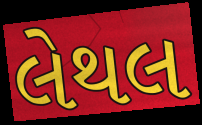
લેથલ